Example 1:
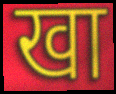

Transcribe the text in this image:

खा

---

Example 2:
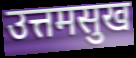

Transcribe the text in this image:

उत्तमसुख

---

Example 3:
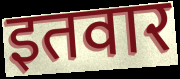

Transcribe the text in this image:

इतवार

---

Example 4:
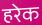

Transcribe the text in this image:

हरेक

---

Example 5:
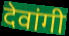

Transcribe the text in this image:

देवांगी